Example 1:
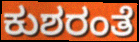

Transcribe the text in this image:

ಕುಶರಂತೆ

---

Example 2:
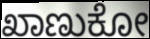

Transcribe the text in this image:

ಖಾಣುಕೋ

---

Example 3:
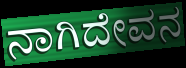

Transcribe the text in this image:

ನಾಗಿದೇವನ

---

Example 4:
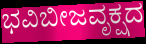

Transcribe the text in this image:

ಭವಿಬೀಜವೃಕ್ಷದ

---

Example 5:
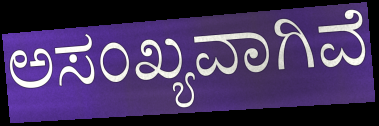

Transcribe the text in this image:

ಅಸಂಖ್ಯವಾಗಿವೆ